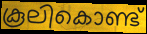
കൂലികൊണ്ട്